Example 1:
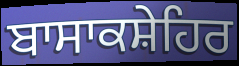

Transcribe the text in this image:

ਬਾਸਾਕਸ਼ੇਹਿਰ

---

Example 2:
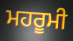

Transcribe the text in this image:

ਮਹਰੂਮੀ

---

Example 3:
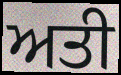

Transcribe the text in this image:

ਅਤੀ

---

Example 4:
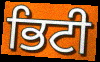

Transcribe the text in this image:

ਭਿਟੀ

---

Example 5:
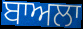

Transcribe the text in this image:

ਬਾਅਲਾ